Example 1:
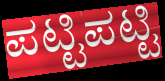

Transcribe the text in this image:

ಪಟ್ಟಿಪಟ್ಟಿ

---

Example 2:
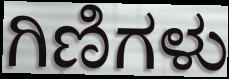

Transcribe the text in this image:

ಗಿಣಿಗಳು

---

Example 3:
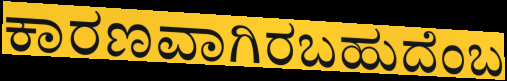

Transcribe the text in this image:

ಕಾರಣವಾಗಿರಬಹುದೆಂಬ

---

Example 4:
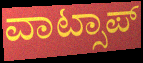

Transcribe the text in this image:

ವಾಟ್ಸಾಪ್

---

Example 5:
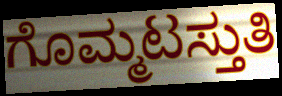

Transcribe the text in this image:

ಗೊಮ್ಮಟಸ್ತುತಿ